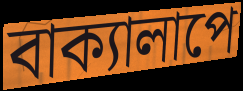
বাক্যালাপে